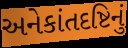
અનેકાંતદષ્ટિનું